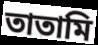
তাতামি